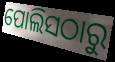
ପୋଲିସଠାରୁ